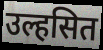
उल्हसित